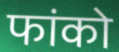
फांको